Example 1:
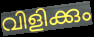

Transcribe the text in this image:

വിളിക്കും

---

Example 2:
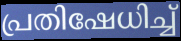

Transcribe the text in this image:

പ്രതിഷേധിച്ച്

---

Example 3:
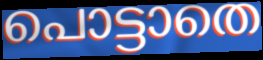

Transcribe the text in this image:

പൊട്ടാതെ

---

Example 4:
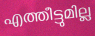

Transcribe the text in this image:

എത്തീട്ടുമില്ല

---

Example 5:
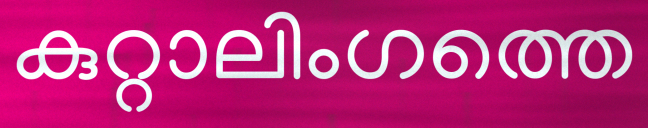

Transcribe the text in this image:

കുറ്റാലിംഗത്തെ